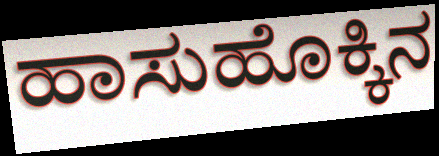
ಹಾಸುಹೊಕ್ಕಿನ